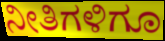
ನೀತಿಗಳಿಗೂ